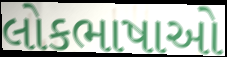
લોકભાષાઓ